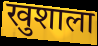
खुशाला